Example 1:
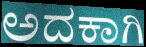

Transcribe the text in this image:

ಅದಕಾಗಿ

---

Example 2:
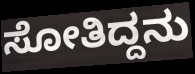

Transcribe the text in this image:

ಸೋತಿದ್ದನು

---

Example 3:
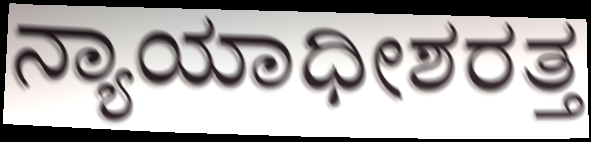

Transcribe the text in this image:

ನ್ಯಾಯಾಧೀಶರತ್ತ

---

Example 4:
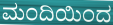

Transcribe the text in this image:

ಮಂದಿಯಿಂದ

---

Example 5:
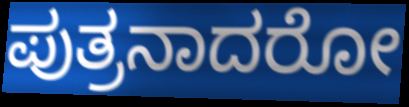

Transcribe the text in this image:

ಪುತ್ರನಾದರೋ